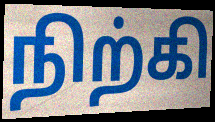
நிற்கி